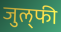
जुल्फी